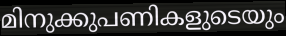
മിനുക്കുപണികളുടെയും